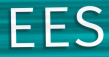
EES